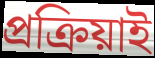
প্ৰক্ৰিয়াই